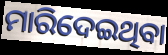
ମାରିଦେଇଥିବା